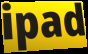
ipad